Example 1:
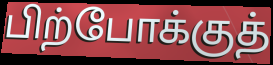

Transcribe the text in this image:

பிற்போக்குத்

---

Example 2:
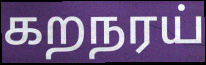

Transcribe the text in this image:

கறநரய்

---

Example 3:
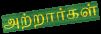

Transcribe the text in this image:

அற்றார்கள்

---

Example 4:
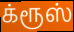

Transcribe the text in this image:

க்ரூஸ்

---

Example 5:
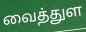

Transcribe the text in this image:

வைத்துள